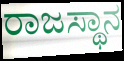
ರಾಜಸ್ಥಾನ